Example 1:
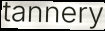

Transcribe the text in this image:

tannery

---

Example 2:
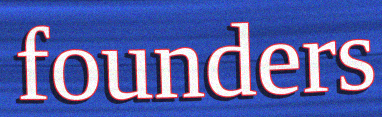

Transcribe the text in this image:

founders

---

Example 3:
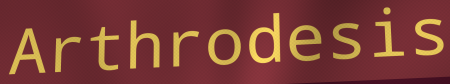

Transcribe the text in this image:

Arthrodesis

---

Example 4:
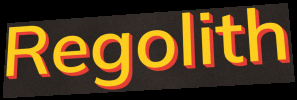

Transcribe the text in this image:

Regolith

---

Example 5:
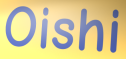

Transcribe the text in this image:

Oishi